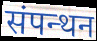
संपन्थन